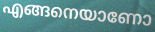
എങ്ങനെയാണോ